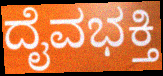
ದೈವಭಕ್ತಿ